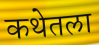
कथेतला